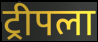
ट्रीपला